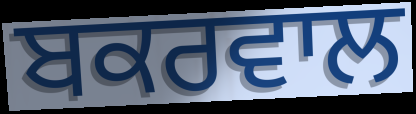
ਬਕਰਵਾਲ